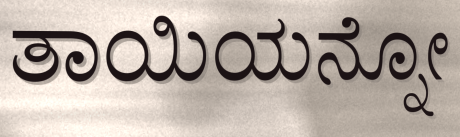
ತಾಯಿಯನ್ನೋ